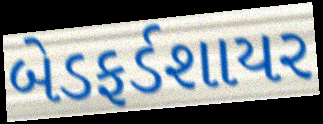
બેડફર્ડશાયર